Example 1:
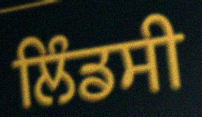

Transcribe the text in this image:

ਲਿੰਡਸੀ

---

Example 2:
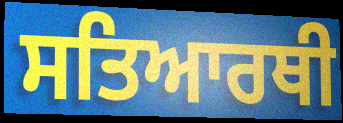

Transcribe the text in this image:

ਸਤਿਆਰਥੀ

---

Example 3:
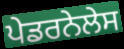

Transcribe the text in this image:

ਪੇਡਰਨੇਲੇਸ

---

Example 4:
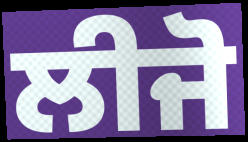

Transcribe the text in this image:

ਲੀਜੋ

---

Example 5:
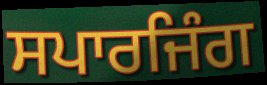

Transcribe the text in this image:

ਸਪਾਰਜਿੰਗ